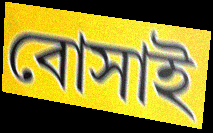
বোসাই